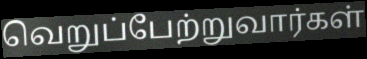
வெறுப்பேற்றுவார்கள்